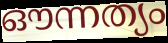
ഔന്നത്യം